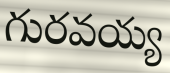
గురవయ్య